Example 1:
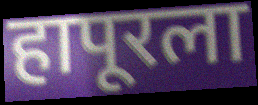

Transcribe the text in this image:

हापूरला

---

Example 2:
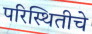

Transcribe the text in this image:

परिस्थितीचे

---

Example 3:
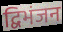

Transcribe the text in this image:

द्विभंजन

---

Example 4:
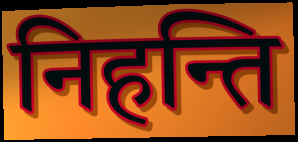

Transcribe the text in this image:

निहन्ति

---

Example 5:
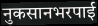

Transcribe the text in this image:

नुकसानभरपाई